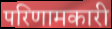
परिणामकारी